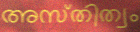
അസ്‌തിത്വം